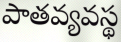
పాతవ్యవస్థ